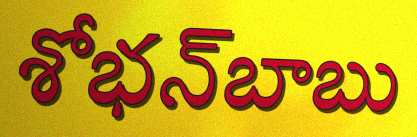
శోభన్‌బాబు